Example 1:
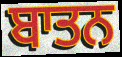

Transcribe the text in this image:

ਬਾਤਨ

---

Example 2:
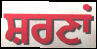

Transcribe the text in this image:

ਸ਼ਰਣਾਂ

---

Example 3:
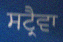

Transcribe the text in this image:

ਸਟ੍ਰੈਵਾ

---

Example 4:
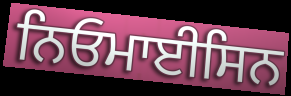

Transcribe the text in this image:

ਨਿਓਮਾਈਸਿਨ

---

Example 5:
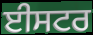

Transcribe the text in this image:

ਈਸਟਰ